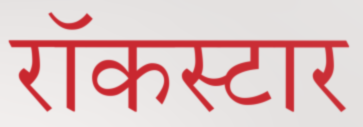
रॉकस्टार